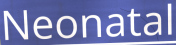
Neonatal